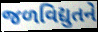
જળવિદ્યુતને